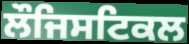
ਲੌਜਿਸਟਿਕਲ